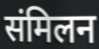
संमिलन